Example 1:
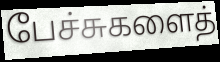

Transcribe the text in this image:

பேச்சுகளைத்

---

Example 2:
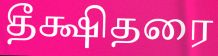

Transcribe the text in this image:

தீக்ஷிதரை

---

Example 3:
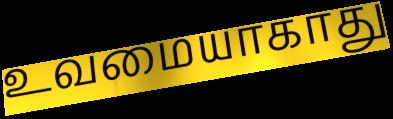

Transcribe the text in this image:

உவமையாகாது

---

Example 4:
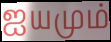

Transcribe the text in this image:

ஐயமும்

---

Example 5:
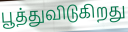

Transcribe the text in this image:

பூத்துவிடுகிறது